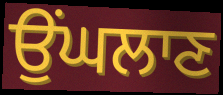
ਉਂਘਲਾਣ